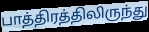
பாத்திரத்திலிருந்து